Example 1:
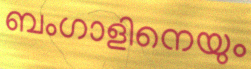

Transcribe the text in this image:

ബംഗാളിനെയും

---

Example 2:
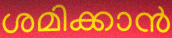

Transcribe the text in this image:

ശമിക്കാൻ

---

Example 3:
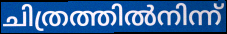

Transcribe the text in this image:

ചിത്രത്തിൽനിന്ന്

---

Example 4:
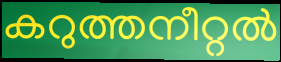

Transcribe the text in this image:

കറുത്തനീറ്റൽ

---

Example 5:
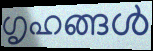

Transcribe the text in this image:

ഗൃഹങ്ങൾ